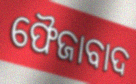
ଫୈଜାବାଦ